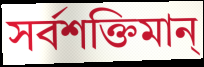
সর্বশক্তিমান্